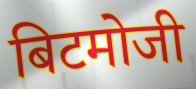
बिटमोजी